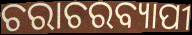
ଚରାଚରବ୍ୟାପୀ